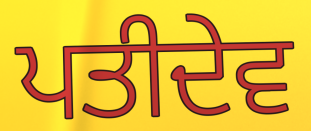
ਪਤੀਦੇਵ